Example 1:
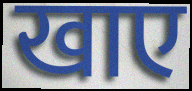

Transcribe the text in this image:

खाए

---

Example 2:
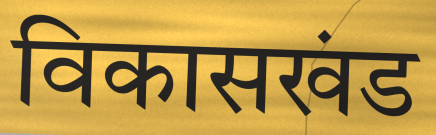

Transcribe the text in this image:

विकासखंड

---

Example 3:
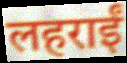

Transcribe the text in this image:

लहराईं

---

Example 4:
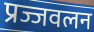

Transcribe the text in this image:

प्रज्जवलन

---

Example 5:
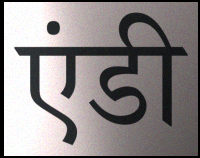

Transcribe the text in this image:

एंडी